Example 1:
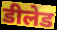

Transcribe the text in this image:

डीलेड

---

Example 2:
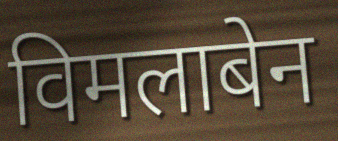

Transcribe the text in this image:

विमलाबेन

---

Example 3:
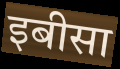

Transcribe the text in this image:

इबीसा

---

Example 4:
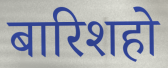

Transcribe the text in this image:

बारिशहो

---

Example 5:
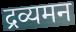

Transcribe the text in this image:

द्रव्यमन